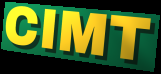
CIMT